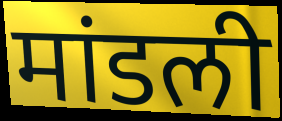
मांडली